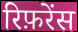
रिफ़रेंस